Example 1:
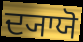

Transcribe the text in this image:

ਦ੍ਯਾਯੋ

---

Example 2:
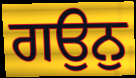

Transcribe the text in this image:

ਗਉਨੁ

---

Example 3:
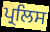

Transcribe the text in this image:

ਪ੍ਰਲਿਸ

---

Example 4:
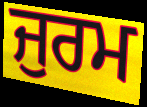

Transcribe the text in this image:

ਜੁਰਮ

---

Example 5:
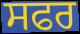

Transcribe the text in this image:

ਸਫਰ